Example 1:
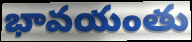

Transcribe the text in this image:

భావయంతు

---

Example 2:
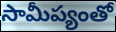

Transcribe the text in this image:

సామీప్యంతో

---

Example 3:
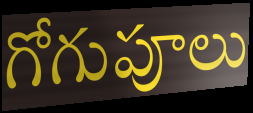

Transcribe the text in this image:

గోగుపూలు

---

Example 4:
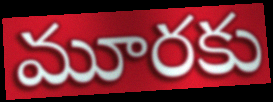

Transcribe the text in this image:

మూరకు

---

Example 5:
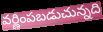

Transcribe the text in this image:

వర్ణింపబడుచున్నది